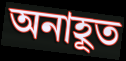
অনাহূত